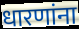
धारणांना